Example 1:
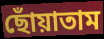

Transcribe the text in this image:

ছোঁয়াতাম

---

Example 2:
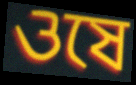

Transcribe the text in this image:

ওষে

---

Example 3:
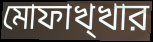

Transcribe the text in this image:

মোফাখ্খার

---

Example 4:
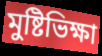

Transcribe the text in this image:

মুষ্টিভিক্ষা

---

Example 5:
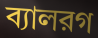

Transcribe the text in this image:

ব্যালরগ